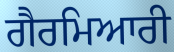
ਗੈਰਮਿਆਰੀ